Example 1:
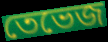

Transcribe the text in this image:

তেভেজ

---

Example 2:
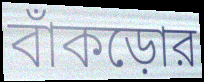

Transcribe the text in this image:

বাঁকড়োর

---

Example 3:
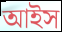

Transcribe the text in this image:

আইস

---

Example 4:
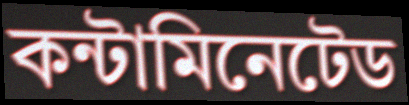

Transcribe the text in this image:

কন্টামিনেটেড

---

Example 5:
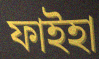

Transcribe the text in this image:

ফাইহা